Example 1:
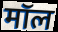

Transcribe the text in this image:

मॉल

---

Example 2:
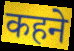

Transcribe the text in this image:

कहने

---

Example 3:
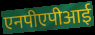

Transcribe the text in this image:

एनपीएपीआई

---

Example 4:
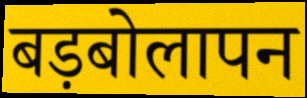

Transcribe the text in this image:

बड़बोलापन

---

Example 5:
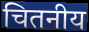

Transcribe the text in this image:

चितनीय